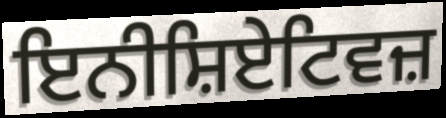
ਇਨੀਸ਼ਿਏਟਿਵਜ਼